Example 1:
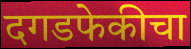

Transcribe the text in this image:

दगडफेकीचा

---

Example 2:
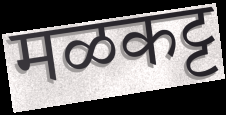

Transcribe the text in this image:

मळकट्ट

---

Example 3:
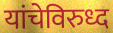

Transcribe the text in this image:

यांचेविरुध्द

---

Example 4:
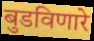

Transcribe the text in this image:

बुडविणारे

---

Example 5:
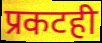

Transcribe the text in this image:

प्रकटही